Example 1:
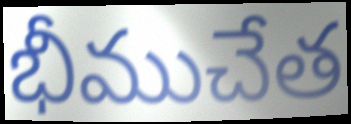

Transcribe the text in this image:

భీముచేత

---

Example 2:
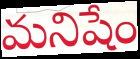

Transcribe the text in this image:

మనిషేం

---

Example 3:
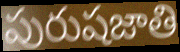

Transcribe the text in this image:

పురుషజాతి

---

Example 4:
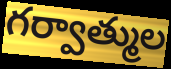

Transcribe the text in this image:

గర్వాత్ముల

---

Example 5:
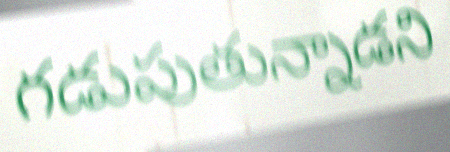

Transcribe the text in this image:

గడుపుతున్నాడని